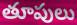
తూపులు